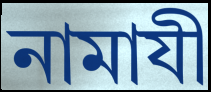
নামাযী